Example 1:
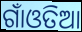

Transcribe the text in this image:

ଗାଁଓତିଆ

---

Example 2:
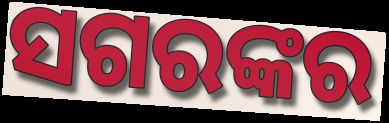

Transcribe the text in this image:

ସଗରଙ୍କର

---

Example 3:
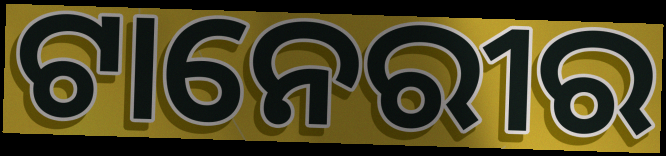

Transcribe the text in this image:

ଟାନେରୀର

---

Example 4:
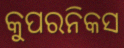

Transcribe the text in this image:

କୁପରନିକସ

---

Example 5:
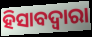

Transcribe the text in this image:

ହିସାବଦ୍ଵାରା